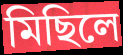
মিছিলে